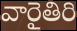
వారైతిరి